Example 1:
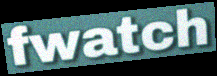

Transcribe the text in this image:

fwatch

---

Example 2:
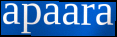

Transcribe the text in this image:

apaara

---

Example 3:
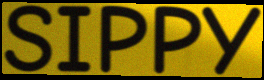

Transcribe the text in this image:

SIPPY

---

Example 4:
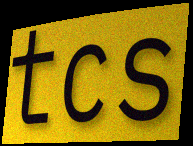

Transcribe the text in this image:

tcs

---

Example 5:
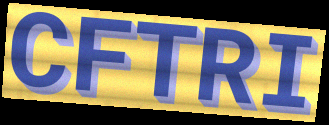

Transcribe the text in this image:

CFTRI